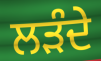
ਲੜੰਦੇ